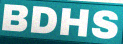
BDHS